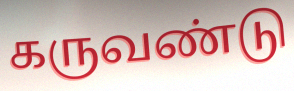
கருவண்டு